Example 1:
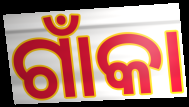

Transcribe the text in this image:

ଗାଁକା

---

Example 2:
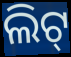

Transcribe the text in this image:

ଲିଟ୍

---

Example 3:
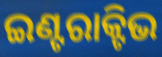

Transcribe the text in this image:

ଇଣ୍ଟରାକ୍ଟିଭ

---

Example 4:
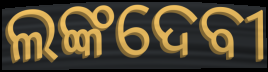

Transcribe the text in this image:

ଲଙ୍କଦେବୀ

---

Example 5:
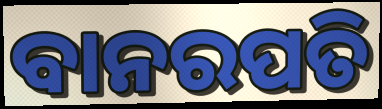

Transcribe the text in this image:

ବାନରପତି